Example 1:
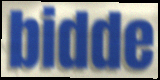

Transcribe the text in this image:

bidde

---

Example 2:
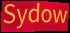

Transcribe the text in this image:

Sydow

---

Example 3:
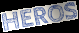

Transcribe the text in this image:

HEROS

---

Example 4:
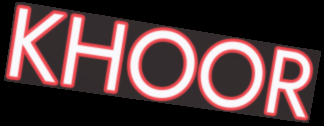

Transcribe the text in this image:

KHOOR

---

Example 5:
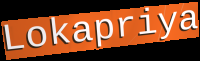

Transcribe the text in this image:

Lokapriya